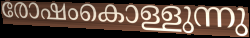
രോഷംകൊള്ളുന്നു